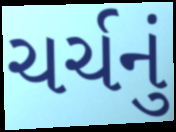
ચર્ચનું